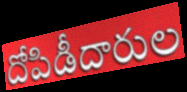
దోపిడీదారుల